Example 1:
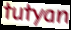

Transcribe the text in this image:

tutyan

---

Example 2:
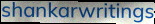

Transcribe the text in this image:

shankarwritings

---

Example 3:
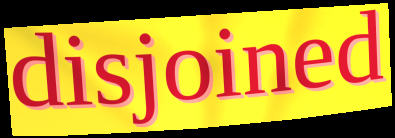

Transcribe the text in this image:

disjoined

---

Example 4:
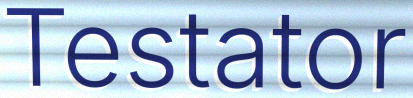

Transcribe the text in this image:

Testator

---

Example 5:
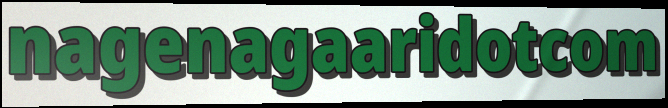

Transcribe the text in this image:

nagenagaaridotcom